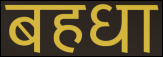
बहधा